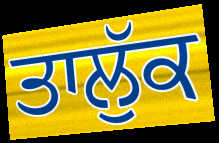
ਤਾਲੁੱਕ